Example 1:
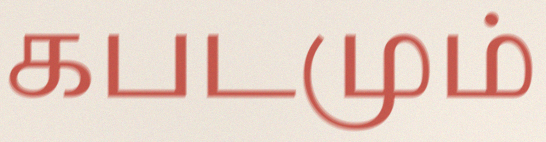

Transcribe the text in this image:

கபடமும்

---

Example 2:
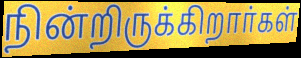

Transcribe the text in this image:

நின்றிருக்கிறார்கள்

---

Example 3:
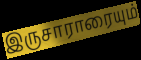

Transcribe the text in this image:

இருசாராரையும்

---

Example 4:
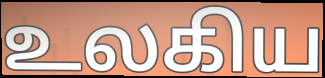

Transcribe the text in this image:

உலகிய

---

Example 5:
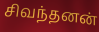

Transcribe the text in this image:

சிவந்தனன்